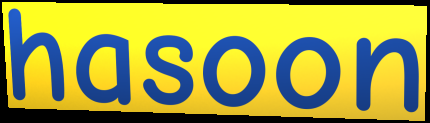
hasoon